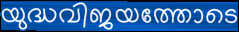
യുദ്ധവിജയത്തോടെ